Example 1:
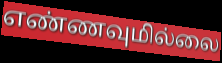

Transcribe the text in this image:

எண்ணவுமில்லை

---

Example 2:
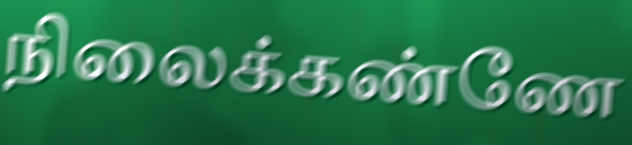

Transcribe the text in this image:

நிலைக்கண்ணே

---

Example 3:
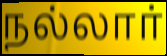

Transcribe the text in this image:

நல்லார்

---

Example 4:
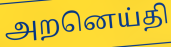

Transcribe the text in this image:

அறனெய்தி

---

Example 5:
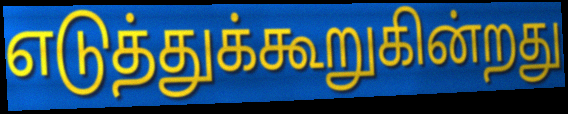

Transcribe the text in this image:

எடுத்துக்கூறுகின்றது